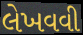
લેખવવી